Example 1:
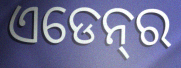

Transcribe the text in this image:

ଏଡେନ୍‍ର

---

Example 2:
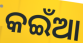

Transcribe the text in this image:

କଇଁଆ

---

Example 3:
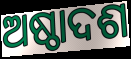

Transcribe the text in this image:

ଅଷ୍ଠାଦଶ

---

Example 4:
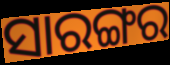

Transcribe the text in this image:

ସାରଙ୍ଗର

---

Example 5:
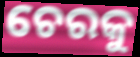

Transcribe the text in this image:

ଚେରକୁ